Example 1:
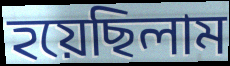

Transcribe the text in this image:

হয়েছিলাম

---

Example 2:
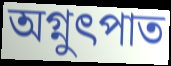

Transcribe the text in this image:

অগ্নুৎপাত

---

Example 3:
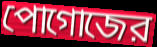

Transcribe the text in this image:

পোগোজের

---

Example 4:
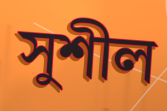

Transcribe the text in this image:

সুশীল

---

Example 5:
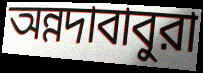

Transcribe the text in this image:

অন্নদাবাবুরা